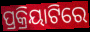
ପ୍ରକ୍ରିୟାଟିରେ